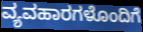
ವ್ಯವಹಾರಗಳೊಂದಿಗೆ